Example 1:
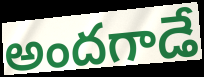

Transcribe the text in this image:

అందగాడే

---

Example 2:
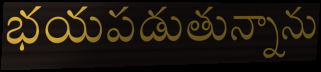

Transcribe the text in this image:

భయపడుతున్నాను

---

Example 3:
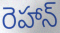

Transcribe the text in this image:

రెహాన్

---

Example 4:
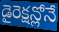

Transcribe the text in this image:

డైరెక్షన్లోనే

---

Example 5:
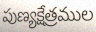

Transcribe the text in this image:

పుణ్యక్షేత్రముల